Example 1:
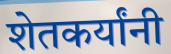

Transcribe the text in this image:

शेतकर्यांनी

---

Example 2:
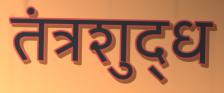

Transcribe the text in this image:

तंत्रशुद्ध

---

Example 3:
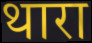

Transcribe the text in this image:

थारा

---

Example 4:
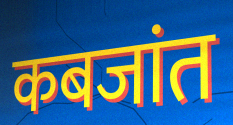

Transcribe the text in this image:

कबजांत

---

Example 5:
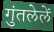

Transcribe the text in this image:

गुंतलेलें